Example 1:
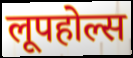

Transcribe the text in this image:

लूपहोल्स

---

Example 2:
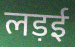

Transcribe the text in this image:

लड़ई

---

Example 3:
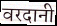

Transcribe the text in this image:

वरदानी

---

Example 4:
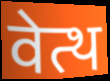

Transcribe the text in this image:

वेत्थ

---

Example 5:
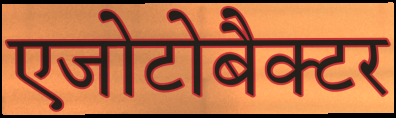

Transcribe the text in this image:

एजोटोबैक्टर